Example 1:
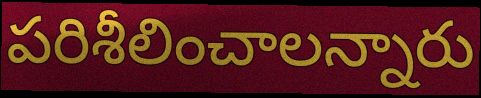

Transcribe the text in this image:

పరిశీలించాలన్నారు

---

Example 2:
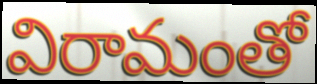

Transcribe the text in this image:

విరామంతో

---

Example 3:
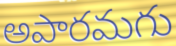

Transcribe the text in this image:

అపారమగు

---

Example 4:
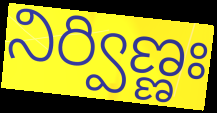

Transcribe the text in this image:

నిర్విణ్ణః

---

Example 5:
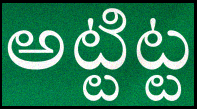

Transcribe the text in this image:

అట్టిట్ట